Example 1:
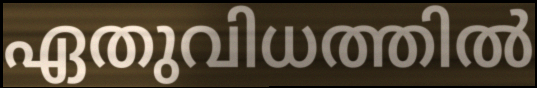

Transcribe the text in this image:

ഏതുവിധത്തിൽ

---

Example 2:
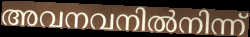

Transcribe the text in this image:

അവനവനിൽനിന്ന്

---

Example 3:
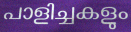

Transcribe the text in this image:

പാളിച്ചകളും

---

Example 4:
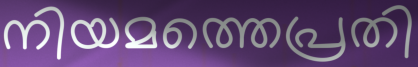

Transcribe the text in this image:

നിയമത്തെപ്രതി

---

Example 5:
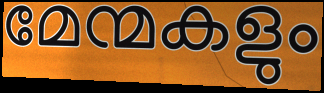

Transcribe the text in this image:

മേന്മകളും